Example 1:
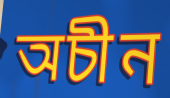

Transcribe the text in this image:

অচীন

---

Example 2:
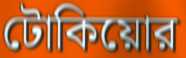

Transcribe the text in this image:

টোকিয়োর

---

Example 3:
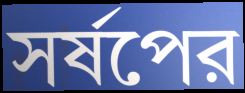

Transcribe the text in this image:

সর্ষপের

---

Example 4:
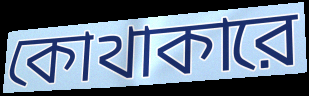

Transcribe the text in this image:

কোথাকারে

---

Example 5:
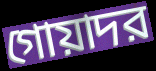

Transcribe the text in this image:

গোয়াদর